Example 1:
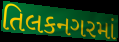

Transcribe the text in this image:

તિલકનગરમાં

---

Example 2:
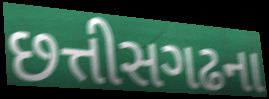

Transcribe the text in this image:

છત્તીસગઢના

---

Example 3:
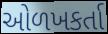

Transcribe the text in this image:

ઓળખકર્તા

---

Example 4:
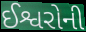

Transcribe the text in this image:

ઈશ્વરોની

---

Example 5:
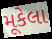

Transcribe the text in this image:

મૂકેલા